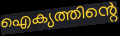
ഐക്യത്തിന്റെ